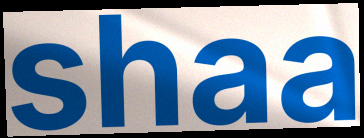
shaa